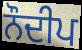
ਨੌਦੀਪ